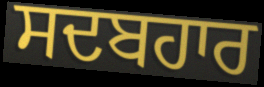
ਸਦਬਹਾਰ